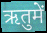
ऋतुमें